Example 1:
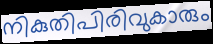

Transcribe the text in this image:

നികുതിപിരിവുകാരും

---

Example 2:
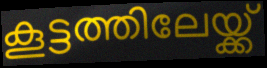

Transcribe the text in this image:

കൂട്ടത്തിലേയ്ക്ക്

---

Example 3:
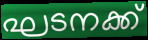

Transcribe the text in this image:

ഘടനക്ക്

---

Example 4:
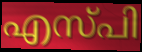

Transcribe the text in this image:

എസ്പി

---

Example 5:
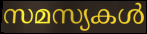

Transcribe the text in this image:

സമസ്യകൾ